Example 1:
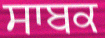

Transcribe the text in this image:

ਸਾਬਕ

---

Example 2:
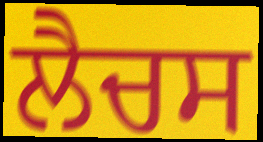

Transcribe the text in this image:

ਲੈਚਸ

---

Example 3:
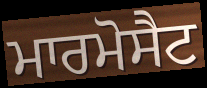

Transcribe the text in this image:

ਮਾਰਮੋਸੈਟ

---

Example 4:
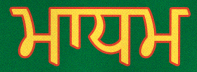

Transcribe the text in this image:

ਮਾਧਮ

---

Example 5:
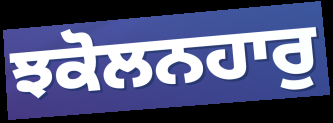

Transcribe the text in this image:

ਝਕੋਲਨਹਾਰੁ